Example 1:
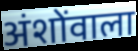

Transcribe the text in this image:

अंशोंवाला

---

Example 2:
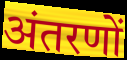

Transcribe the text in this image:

अंतरणों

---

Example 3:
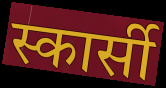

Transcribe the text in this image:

स्कार्सी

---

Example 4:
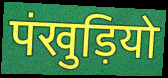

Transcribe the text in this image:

पंखुड़ियो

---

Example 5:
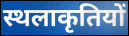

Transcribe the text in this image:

स्थलाकृतियों